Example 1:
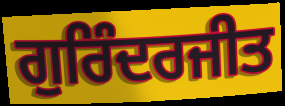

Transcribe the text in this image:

ਗੁਰਿੰਦਰਜੀਤ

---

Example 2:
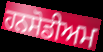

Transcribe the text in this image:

ਹਨਸੋਡੀਅਮ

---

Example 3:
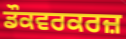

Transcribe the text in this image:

ਡੌਕਵਰਕਰਜ਼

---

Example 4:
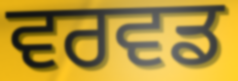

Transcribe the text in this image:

ਵਰਵਡ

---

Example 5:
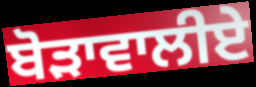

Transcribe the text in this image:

ਬੋੜਾਵਾਲੀਏ